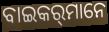
ବାଇକର୍‌ମାନେ